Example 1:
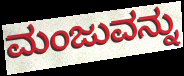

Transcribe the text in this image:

ಮಂಜುವನ್ನು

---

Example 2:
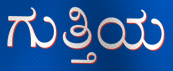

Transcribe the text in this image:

ಗುತ್ತಿಯ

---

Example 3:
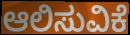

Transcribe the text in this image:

ಆಲಿಸುವಿಕೆ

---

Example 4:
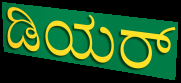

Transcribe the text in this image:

ಡಿಯರ್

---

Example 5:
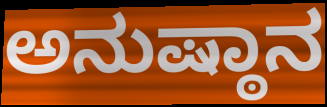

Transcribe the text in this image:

ಅನುಷ್ಠಾನ